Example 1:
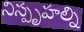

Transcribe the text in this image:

నిస్పృహల్ని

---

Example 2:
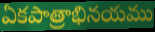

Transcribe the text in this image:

ఏకపాత్రాభినయము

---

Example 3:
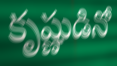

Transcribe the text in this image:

కృష్ణుడినో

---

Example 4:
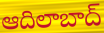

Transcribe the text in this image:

ఆదిలాబాద్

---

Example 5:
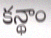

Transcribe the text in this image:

కన్థాం